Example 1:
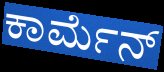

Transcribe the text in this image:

ಕಾರ್ಮೆನ್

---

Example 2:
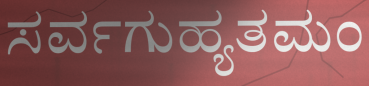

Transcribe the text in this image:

ಸರ್ವಗುಹ್ಯತಮಂ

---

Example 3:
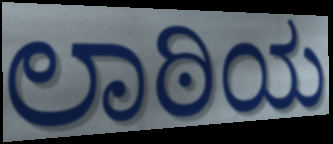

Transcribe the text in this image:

ಲಾಠಿಯ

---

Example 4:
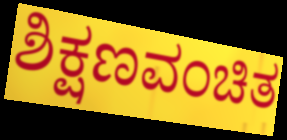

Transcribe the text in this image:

ಶಿಕ್ಷಣವಂಚಿತ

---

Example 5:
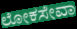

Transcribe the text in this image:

ಲೋಕಸೇವಾ